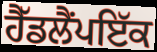
ਹੈੱਡਲੈਂਪਇੱਕ